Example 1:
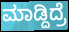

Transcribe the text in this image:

ಮಾಡ್ದಿದ್ರೆ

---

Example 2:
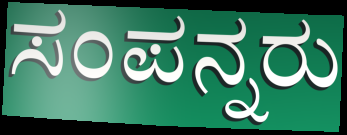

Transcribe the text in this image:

ಸಂಪನ್ನರು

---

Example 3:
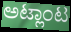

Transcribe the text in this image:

ಅಟ್ಲಾಂಟ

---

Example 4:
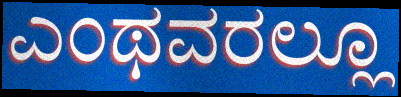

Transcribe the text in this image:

ಎಂಥವರಲ್ಲೂ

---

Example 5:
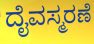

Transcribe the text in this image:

ದೈವಸ್ಮರಣೆ